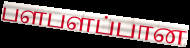
பளபளப்பான